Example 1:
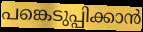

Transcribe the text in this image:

പങ്കെടുപ്പിക്കാൻ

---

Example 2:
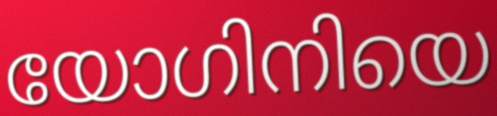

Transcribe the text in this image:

യോഗിനിയെ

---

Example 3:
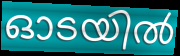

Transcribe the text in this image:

ഓടയിൽ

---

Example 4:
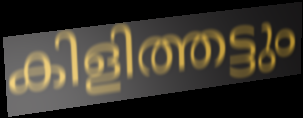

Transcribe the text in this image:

കിളിത്തട്ടും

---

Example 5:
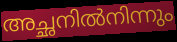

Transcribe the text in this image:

അച്ഛനിൽനിന്നും